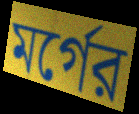
মর্গের